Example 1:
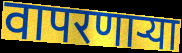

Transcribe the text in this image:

वापरणार्‍या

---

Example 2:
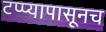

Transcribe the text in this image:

टप्प्यापासूनच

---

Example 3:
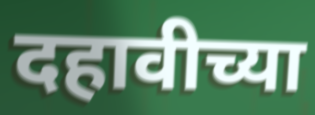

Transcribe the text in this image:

दहावीच्या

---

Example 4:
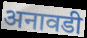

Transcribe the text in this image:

अनावडी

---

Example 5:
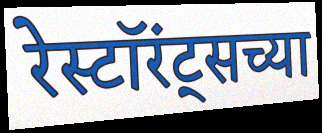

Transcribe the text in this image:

रेस्टॉरंट्सच्या